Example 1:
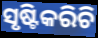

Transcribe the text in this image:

ସୃଷ୍ଟିକରିଚି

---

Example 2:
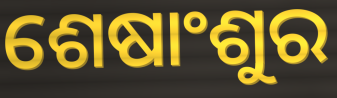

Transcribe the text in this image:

ଶେଷାଂଶୁର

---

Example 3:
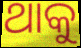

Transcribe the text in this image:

ଥାକୁ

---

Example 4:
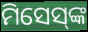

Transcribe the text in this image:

ମିସେସ୍‌ଙ୍କ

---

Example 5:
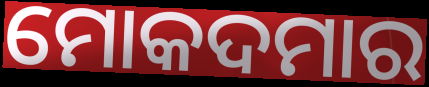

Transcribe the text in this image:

ମୋକଦମାର